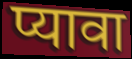
प्यावा